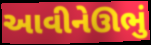
આવીનેઊભું